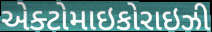
એક્ટોમાઇકોરાઇઝી